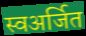
स्वअर्जित